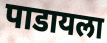
पाडायला